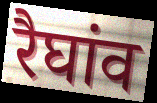
रैघांव